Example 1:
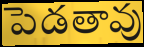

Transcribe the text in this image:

పెడతావు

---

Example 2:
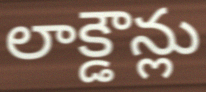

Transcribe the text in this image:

లాక్డౌన్లు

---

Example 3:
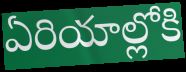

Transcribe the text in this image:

ఏరియాల్లోకి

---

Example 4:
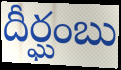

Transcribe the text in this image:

దీర్ఘంబు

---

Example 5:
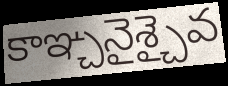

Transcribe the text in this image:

కాఞ్చనైశ్చైవ